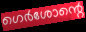
ഗെർശോന്റെ